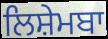
ਲਿਸ਼ੇਮਬਾ